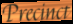
Precinct